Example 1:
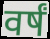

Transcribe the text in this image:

वर्षँ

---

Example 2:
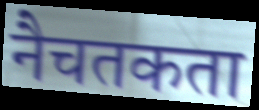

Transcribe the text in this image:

नैचतकता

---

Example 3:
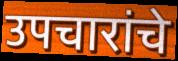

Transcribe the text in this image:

उपचारांचे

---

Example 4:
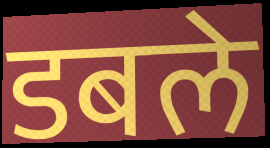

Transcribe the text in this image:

डबले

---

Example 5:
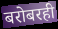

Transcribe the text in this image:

बरोबरही